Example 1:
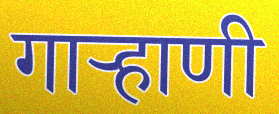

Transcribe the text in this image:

गार्‍हाणी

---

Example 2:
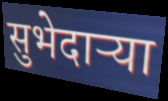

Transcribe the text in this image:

सुभेदाऱ्या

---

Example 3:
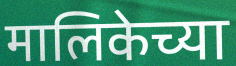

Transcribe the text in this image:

मालिकेच्या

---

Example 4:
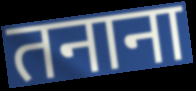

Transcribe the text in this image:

तनाना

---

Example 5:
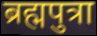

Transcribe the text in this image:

ब्रह्मपुत्रा